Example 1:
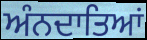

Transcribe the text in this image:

ਅੰਨਦਾਤਿਆਂ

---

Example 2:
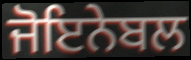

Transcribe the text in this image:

ਜੋਇਨੇਬਲ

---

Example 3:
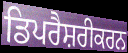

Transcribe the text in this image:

ਡਿਪਰੈਸ਼ਰੀਕਰਨ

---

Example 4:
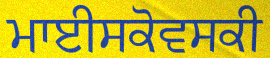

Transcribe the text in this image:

ਮਾਈਸਕੋਵਸਕੀ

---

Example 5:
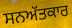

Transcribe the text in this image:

ਸਨਅੱਤਕਾਰ